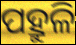
ପହ୍ରୁଳି